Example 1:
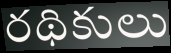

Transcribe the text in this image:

రథికులు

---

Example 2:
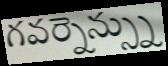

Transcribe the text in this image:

గవర్నెన్స్ను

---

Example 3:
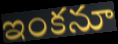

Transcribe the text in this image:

ఇంకనూ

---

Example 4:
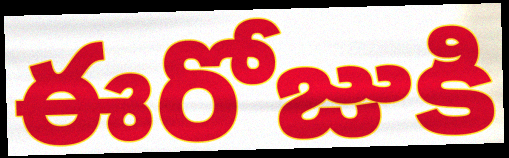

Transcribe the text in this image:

ఈరోజుకి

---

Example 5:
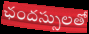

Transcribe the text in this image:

ఛందస్సులతో